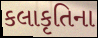
કલાકૃતિના